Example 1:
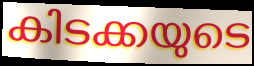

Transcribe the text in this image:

കിടക്കയുടെ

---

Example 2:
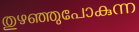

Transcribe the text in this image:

തുഴഞ്ഞുപോകുന്ന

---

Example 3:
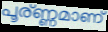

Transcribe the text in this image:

പൂര്ണ്ണമാണ്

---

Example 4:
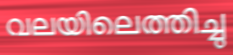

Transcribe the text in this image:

വലയിലെത്തിച്ചു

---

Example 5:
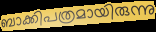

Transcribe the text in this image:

ബാക്കിപത്രമായിരുന്നു